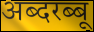
अब्दरब्बू